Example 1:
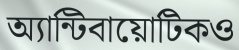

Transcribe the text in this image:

অ্যান্টিবায়োটিকও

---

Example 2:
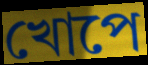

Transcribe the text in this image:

খোপে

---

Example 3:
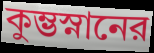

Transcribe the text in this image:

কুম্ভস্নানের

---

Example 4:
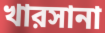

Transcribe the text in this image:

খারসানা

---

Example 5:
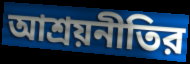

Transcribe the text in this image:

আশ্রয়নীতির